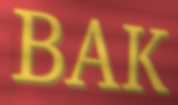
BAK